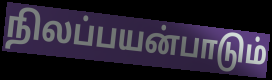
நிலப்பயன்பாடும்